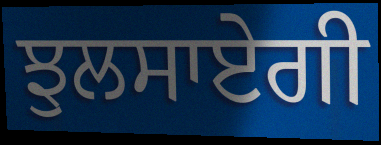
ਝੁਲਸਾਏਗੀ